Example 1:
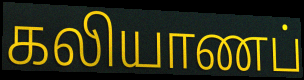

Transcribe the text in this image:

கலியாணப்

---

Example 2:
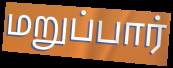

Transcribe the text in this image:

மறுப்பார்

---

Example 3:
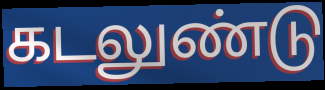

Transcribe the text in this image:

கடலுண்டு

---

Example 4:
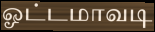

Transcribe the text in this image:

ஓட்டமாவடி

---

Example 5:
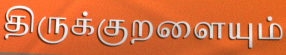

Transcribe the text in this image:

திருக்குறளையும்